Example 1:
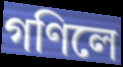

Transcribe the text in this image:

গণিলে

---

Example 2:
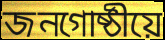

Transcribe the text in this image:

জনগোষ্ঠীয়ে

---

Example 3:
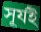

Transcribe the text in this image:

সূৰ্যই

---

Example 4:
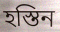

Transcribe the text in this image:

হস্তিন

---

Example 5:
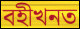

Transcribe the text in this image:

বহীখনত